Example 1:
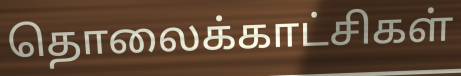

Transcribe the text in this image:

தொலைக்காட்சிகள்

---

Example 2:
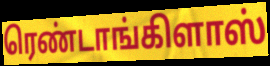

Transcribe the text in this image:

ரெண்டாங்கிளாஸ்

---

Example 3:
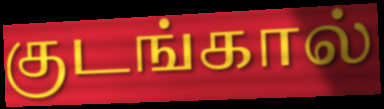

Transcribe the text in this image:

குடங்கால்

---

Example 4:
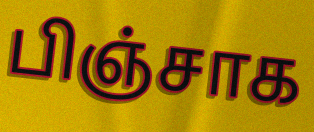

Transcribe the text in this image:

பிஞ்சாக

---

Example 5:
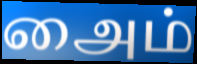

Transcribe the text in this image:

அைம்